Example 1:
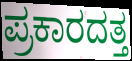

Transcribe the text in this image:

ಪ್ರಕಾರದತ್ತ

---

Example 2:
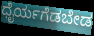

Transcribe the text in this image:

ಧೈರ್ಯಗೆಡಬೇಡ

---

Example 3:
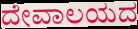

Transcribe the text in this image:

ದೇವಾಲಯದ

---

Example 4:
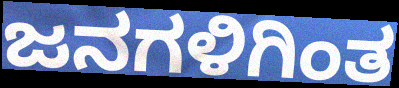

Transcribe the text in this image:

ಜನಗಳಿಗಿಂತ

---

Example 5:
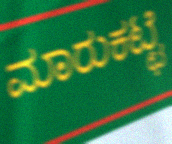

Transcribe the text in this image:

ಮಾರುಕಟ್ಟೆ